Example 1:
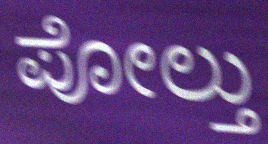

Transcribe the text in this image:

ಪೋಲ್ತು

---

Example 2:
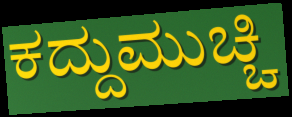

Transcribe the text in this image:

ಕದ್ದುಮುಚ್ಚಿ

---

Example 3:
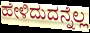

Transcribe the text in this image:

ಹೇಳಿದುದನ್ನೆಲ್ಲ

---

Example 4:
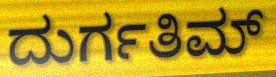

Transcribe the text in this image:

ದುರ್ಗತಿಮ್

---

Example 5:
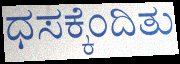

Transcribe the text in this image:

ಧಸಕ್ಕೆಂದಿತು